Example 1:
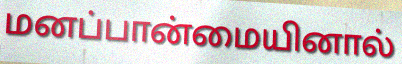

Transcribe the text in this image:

மனப்பான்மையினால்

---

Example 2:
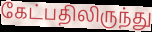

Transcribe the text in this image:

கேட்பதிலிருந்து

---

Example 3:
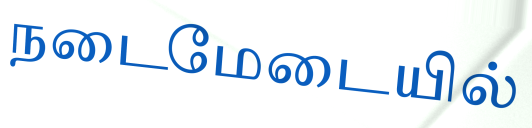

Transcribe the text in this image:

நடைமேடையில்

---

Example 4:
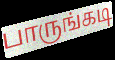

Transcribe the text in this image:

பாருங்கடி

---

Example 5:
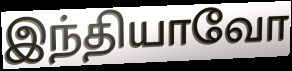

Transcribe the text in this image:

இந்தியாவோ